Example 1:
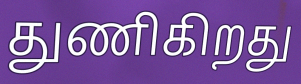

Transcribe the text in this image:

துணிகிறது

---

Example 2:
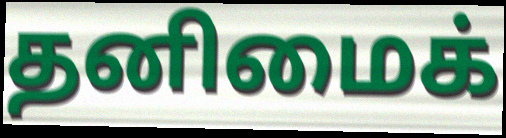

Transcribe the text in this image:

தனிமைக்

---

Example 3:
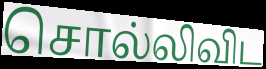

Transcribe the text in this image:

சொல்லிவிட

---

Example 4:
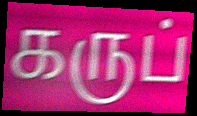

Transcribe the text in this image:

கருப்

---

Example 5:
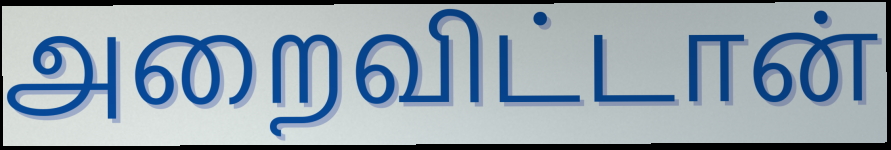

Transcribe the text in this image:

அறைவிட்டான்